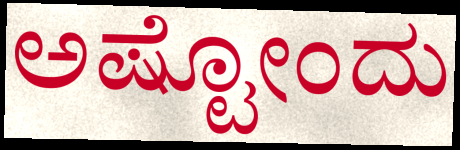
ಅಷ್ಟೋಂದು